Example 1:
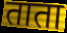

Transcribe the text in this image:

ताता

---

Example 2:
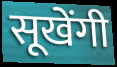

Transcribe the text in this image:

सूखेंगी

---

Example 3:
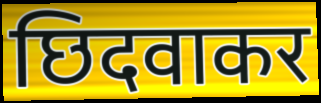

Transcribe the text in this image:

छिदवाकर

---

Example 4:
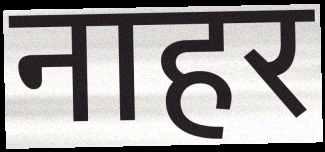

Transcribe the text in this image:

नाहर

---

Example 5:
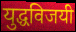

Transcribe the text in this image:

युद्धविजयी